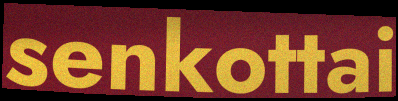
senkottai